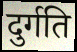
दुर्गति